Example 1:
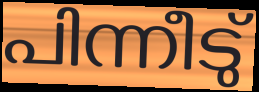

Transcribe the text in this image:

പിന്നീടു്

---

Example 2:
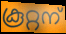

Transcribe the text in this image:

കൂറ്റന്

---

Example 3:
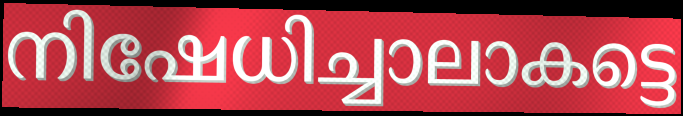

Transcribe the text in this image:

നിഷേധിച്ചാലാകട്ടെ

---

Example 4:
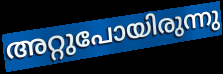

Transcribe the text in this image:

അറ്റുപോയിരുന്നു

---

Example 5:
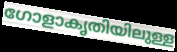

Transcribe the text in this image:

ഗോളാകൃതിയിലുള്ള